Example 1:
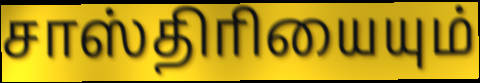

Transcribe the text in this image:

சாஸ்திரியையும்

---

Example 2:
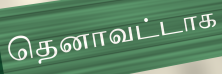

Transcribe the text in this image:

தெனாவட்டாக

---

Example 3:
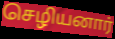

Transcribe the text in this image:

செழியனார்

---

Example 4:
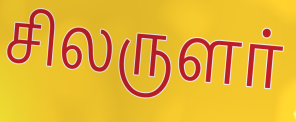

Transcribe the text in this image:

சிலருளர்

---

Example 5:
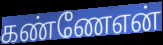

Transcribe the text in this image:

கண்ணேஎன்